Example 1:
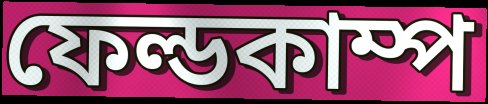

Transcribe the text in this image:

ফেল্ডকাম্প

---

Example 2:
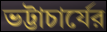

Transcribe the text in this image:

ভট্টাচার্যের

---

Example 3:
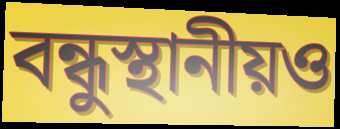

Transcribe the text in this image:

বন্ধুস্থানীয়ও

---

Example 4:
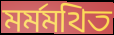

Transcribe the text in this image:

মর্মমথিত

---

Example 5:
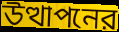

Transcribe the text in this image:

উত্থাপনের